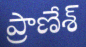
ప్రాణేశ్